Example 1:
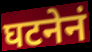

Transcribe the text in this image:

घटनेनं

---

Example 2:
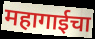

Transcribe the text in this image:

महागाईचा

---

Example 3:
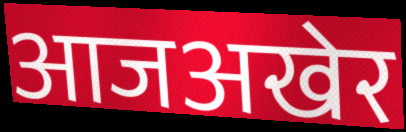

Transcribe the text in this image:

आजअखेर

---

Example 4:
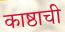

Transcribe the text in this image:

काष्ठाची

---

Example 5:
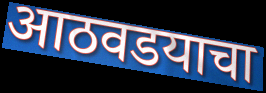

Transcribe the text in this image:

आठवडयाचा